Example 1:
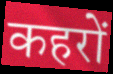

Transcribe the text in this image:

कहरों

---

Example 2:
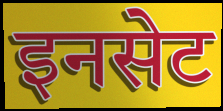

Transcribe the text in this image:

इनसेट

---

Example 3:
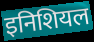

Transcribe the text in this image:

इनिशियल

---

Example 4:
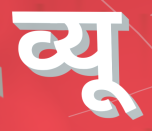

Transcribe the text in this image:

व्यू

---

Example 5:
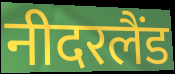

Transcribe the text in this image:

नीदरलैंड